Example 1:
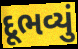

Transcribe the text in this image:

દૂભવ્યું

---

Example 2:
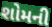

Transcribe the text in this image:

શોમની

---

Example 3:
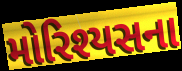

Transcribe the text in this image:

મોરિશ્યસના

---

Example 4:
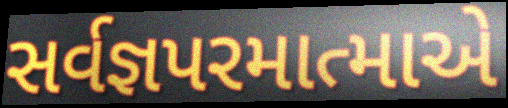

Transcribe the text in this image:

સર્વજ્ઞપરમાત્માએ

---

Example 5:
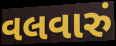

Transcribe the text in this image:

વલવારું